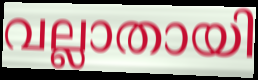
വല്ലാതായി